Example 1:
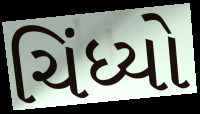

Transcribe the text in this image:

ચિંધ્યો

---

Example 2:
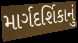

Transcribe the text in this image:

માર્ગદર્શિકાનું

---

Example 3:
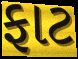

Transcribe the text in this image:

ફાટ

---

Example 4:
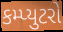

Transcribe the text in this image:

કમ્પ્યુટરો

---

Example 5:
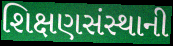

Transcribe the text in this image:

શિક્ષણસંસ્થાની